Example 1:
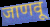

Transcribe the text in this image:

जाणवू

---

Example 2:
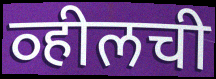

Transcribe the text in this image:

व्हीलची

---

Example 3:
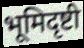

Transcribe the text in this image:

भूमिदृष्टी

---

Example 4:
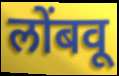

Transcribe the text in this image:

लोंबवू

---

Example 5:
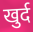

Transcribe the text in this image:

खुर्द